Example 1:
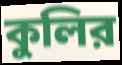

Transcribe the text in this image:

কুলির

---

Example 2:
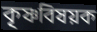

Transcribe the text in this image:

কৃষ্ণবিষয়ক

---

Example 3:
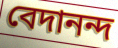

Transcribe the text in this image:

বেদানন্দ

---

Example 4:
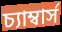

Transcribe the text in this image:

চ্যাম্বার্স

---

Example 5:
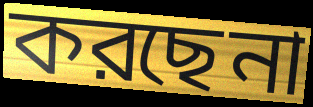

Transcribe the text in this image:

করছেনা